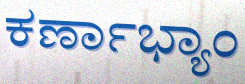
ಕರ್ಣಾಭ್ಯಾಂ